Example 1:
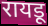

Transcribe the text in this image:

रायडू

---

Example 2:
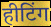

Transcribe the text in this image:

हीटिंग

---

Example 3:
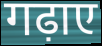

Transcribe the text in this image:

गढ़ाए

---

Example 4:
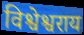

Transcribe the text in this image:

विश्वेश्वराय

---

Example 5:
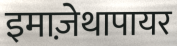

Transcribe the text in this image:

इमाज़ेथापायर